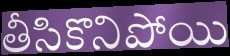
తీసికొనిపోయి